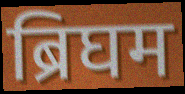
ब्रिघम